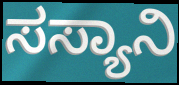
ಸಸ್ಯಾನಿ